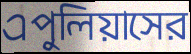
এপুলিয়াসের